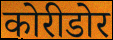
कोरीडोर